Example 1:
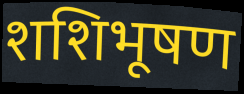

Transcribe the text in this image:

शशिभूषण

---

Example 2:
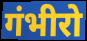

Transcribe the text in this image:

गंभीरो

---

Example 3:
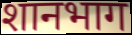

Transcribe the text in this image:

शानभाग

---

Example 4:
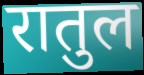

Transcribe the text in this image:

रातुल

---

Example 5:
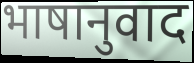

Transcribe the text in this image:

भाषानुवाद